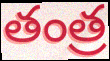
తంత్ర